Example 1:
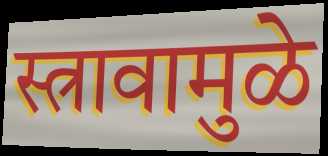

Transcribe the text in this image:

स्त्रावामुळे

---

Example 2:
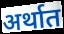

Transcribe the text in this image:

अर्थात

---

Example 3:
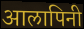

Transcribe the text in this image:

आलापिनी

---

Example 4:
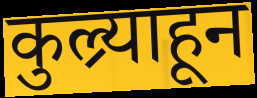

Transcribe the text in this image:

कुल्र्याहून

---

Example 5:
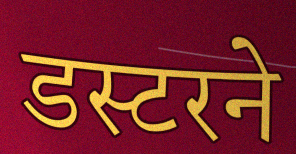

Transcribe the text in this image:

डस्टरने